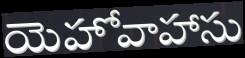
యెహోవాహాసు